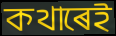
কথাৰেই